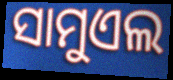
ସାମୁଏଲ